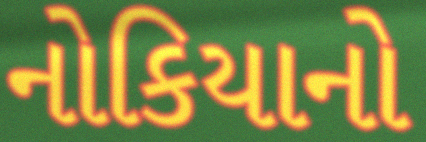
નોકિયાનો